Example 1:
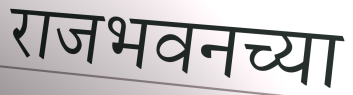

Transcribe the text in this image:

राजभवनच्या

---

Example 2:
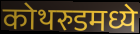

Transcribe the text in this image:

कोथरुडमध्ये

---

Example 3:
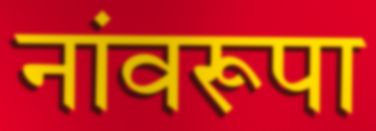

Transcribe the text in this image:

नांवरूपा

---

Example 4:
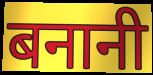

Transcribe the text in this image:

बनानी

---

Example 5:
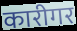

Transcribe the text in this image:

कारीगर